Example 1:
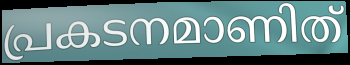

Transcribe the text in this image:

പ്രകടനമാണിത്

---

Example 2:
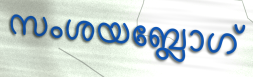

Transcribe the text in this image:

സംശയബ്ലോഗ്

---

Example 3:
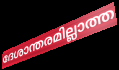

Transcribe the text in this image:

ദേശാന്തരമില്ലാത്ത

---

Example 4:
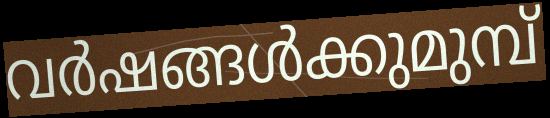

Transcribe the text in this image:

വർഷങ്ങൾക്കുമുമ്പ്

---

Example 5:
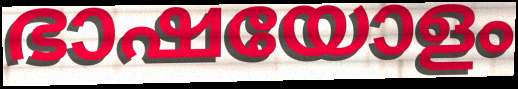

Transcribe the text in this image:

ഭാഷയോളം